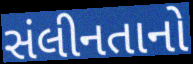
સંલીનતાનો